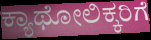
ಕ್ಯಾಥೋಲಿಕ್ಕರಿಗೆ